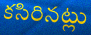
కసిరినట్లు